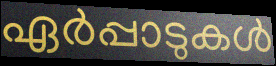
ഏർപ്പാടുകൾ